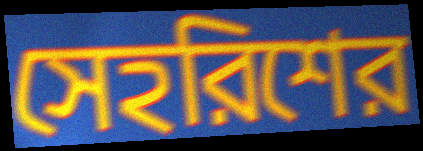
সেহরিশের